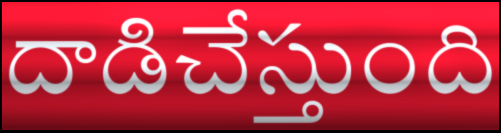
దాడిచేస్తుంది